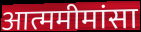
आत्ममीमांसा